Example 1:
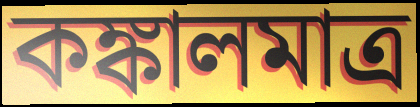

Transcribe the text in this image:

কঙ্কালমাত্র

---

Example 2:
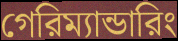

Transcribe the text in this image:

গেরিম্যান্ডারিং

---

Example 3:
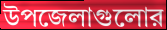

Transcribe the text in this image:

উপজেলাগুলোর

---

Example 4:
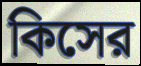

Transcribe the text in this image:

কিসের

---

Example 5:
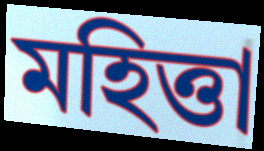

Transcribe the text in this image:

মহিত্তা